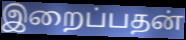
இறைப்பதன்